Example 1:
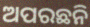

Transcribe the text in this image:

ଅପରଛନି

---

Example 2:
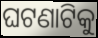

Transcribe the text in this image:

ଘଟଣାଟିକୁ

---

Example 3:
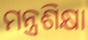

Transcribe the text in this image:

ମନ୍ତ୍ରଶିକ୍ଷା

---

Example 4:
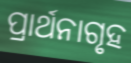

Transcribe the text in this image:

ପ୍ରାର୍ଥନାଗୃହ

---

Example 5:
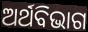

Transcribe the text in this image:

ଅର୍ଥବିଭାଗ